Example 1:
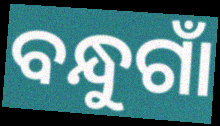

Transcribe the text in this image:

ବନ୍ଧୁଗାଁ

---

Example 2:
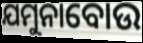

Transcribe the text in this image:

ଯମୁନାବୋଉ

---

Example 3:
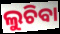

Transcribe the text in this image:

ଲୁଚିବା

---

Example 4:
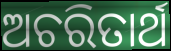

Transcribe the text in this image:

ଅଚରିତାର୍ଥ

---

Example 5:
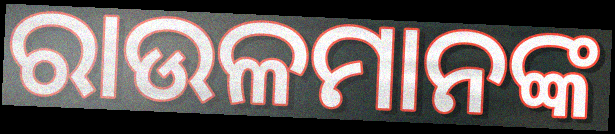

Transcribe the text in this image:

ରାଉଳମାନଙ୍କ